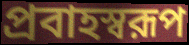
প্রবাহস্বরূপ